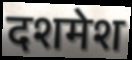
दशमेश